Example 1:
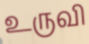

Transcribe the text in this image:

உருவி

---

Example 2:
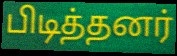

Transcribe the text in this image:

பிடித்தனர்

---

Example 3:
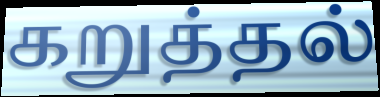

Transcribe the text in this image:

கறுத்தல்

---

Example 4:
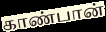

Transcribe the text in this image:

காண்பான்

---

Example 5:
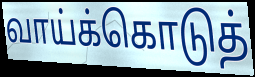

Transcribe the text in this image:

வாய்க்கொடுத்